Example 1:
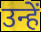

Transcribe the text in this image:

उन्हें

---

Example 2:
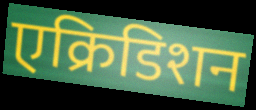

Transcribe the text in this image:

एक्रिडिशन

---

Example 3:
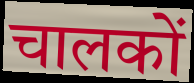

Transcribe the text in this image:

चालकों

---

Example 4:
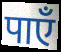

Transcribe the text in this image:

पाएँ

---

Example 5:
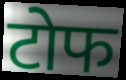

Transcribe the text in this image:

टोफ